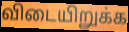
விடையிறுக்க